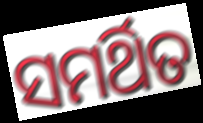
ସମର୍ଥିତ